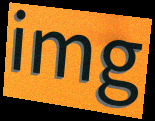
img